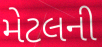
મેટલની